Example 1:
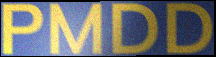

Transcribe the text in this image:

PMDD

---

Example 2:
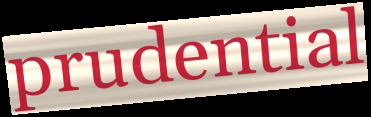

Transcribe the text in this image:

prudential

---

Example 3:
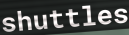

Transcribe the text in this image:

shuttles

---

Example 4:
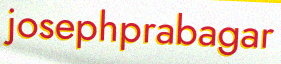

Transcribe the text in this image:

josephprabagar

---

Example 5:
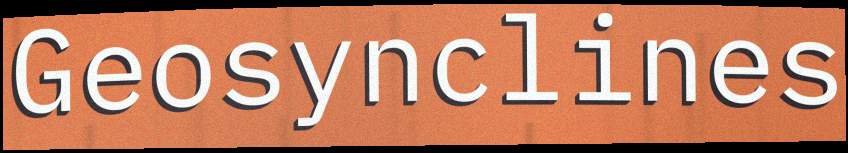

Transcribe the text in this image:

Geosynclines